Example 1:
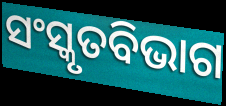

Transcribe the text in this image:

ସଂସ୍କୃତବିଭାଗ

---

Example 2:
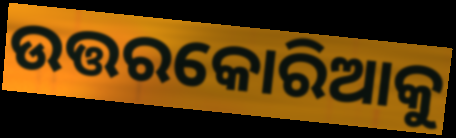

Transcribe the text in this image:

ଉତ୍ତରକୋରିଆକୁ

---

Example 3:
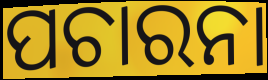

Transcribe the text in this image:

ପଚାରନା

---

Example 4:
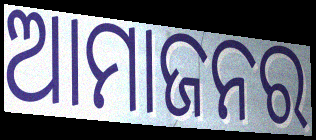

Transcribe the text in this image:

ଆମାଜନର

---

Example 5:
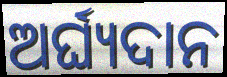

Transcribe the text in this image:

ଅର୍ଘ୍ୟଦାନ